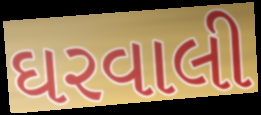
ઘરવાલી